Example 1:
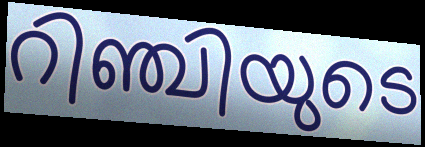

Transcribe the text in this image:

റിഞ്ചിയുടെ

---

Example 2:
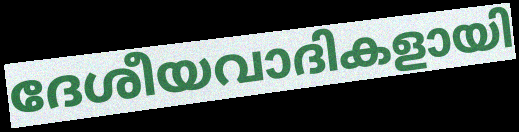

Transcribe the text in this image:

ദേശീയവാദികളായി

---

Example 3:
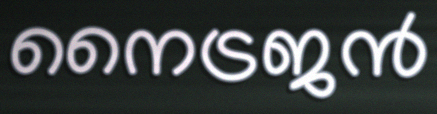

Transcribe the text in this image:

നൈട്രജൻ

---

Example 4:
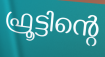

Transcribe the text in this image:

ഫ്രൂട്ടിന്റെ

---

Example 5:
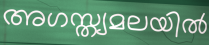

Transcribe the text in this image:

അഗസ്ത്യമലയിൽ